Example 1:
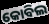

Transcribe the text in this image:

କୋବିଲ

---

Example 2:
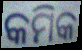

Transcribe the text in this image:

କମିକ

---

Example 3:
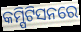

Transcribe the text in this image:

କମ୍ପିଟିସନରେ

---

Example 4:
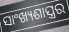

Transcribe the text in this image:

ସାଂଖ୍ୟଶାସ୍ତ୍ରର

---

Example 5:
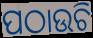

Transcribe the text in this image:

ପଠାଉଚି